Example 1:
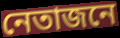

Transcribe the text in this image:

নেতাজনে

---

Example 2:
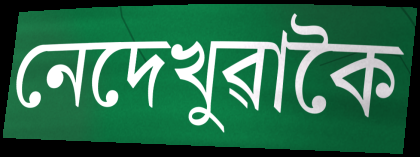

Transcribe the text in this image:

নেদেখুৱাকৈ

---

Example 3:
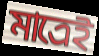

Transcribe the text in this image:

মাত্ৰেই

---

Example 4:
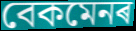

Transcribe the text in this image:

বেকমেনৰ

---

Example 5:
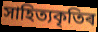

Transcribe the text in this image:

সাহিত্যকৃতিৰ